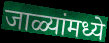
जाळ्यांमध्ये